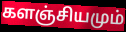
களஞ்சியமும்